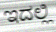
ಇದಲ್ಲಿ